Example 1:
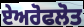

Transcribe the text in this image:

ਏਅਰੋਫਲੋਤ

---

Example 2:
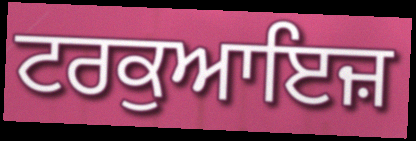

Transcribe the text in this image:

ਟਰਕੁਆਇਜ਼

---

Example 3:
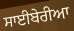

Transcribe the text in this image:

ਸਾਈਬੇਰੀਆ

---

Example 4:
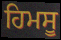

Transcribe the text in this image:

ਹਿਮਸੂ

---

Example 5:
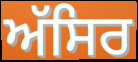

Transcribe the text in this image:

ਅੱਸਿਰ